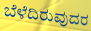
ಬೆಳೆದಿರುವುದರ